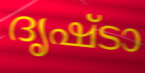
ദൃഷ്ടാ